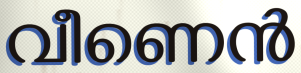
വീണെൻ